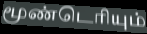
மூண்டெரியும்